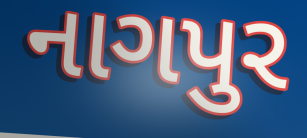
નાગપુર